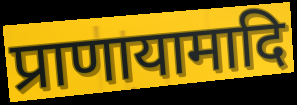
प्राणायामादि